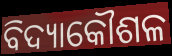
ବିଦ୍ୟାକୌଶଳ